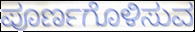
ಪೂರ್ಣಗೊಳಿಸುವ